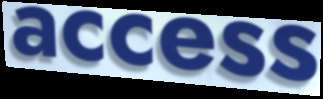
access